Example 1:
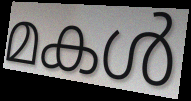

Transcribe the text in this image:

മകൾ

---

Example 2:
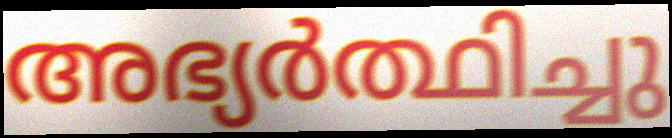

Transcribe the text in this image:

അഭ്യർത്ഥിച്ചു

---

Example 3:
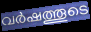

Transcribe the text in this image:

വർഷത്തൂടെ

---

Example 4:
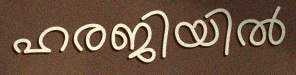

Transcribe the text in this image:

ഹരജിയിൽ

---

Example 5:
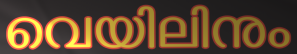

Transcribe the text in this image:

വെയിലിനും